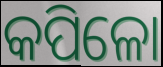
କପିଳୋ